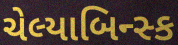
ચેલ્યાબિન્સ્ક